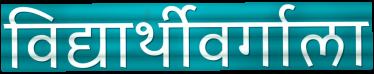
विद्यार्थीवर्गाला